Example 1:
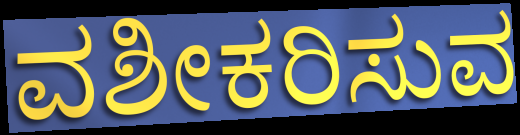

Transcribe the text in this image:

ವಶೀಕರಿಸುವ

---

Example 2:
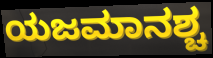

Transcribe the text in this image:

ಯಜಮಾನಶ್ಚ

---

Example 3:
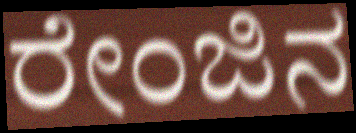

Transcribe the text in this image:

ರೇಂಜಿನ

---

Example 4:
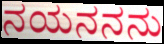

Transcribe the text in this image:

ನಯನನನು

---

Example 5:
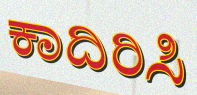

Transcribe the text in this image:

ಕಾದಿರಿಸಿ